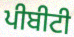
ਪੀਬੀਟੀ